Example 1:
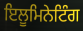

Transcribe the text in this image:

ਇਲੂਮਿਨੇਟਿੰਗ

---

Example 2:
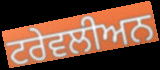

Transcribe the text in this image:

ਟਰੇਵਲੀਅਨ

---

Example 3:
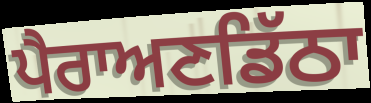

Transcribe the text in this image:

ਪੈਰਾਅਣਡਿੱਠਾ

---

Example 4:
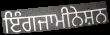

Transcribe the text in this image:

ਇੰਗਜਾਮੀਨੇਸ਼ਨ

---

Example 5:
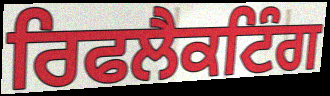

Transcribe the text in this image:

ਰਿਫਲੈਕਟਿੰਗ